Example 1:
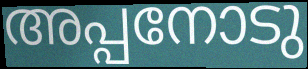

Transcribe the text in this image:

അപ്പനോടു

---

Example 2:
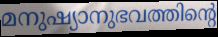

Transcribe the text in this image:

മനുഷ്യാനുഭവത്തിന്റെ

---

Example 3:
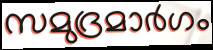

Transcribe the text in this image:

സമുദ്രമാർഗം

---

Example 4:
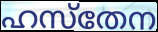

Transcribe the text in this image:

ഹസ്തേന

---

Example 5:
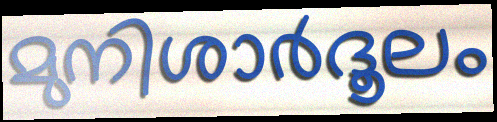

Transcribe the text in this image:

മുനിശാർദൂലം